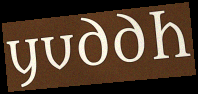
yuddh